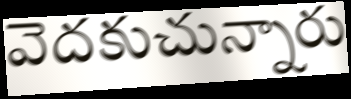
వెదకుచున్నారు